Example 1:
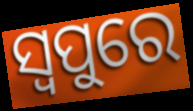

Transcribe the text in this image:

ସ୍ୱପୁରେ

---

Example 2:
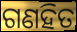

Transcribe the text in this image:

ଗଣହିତ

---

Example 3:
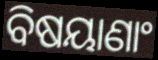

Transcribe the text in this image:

ବିଷୟାଣାଂ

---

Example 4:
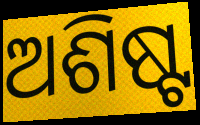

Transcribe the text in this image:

ଅଶିଷ୍ଟ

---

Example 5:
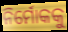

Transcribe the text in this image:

ନିର୍ମୋକକୁ